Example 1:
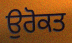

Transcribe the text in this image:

ਉਰੋਕਤ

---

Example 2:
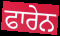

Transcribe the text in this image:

ਫਾਰੇਨ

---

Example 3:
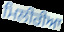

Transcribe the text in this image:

ਮਿਲੀਰੀਆ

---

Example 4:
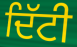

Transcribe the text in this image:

ਦਿੱਟੀ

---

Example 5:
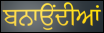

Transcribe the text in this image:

ਬਨਾਉਂਦੀਆਂ